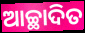
ଆଚ୍ଛାଦିତ